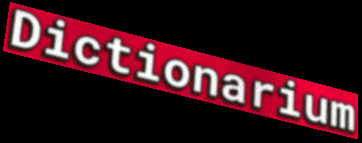
Dictionarium